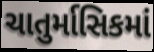
ચાતુર્માસિકમાં